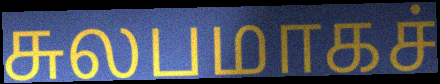
சுலபமாகச்